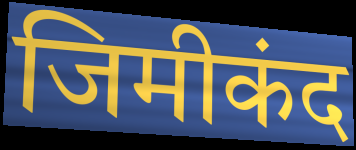
जिमीकंद